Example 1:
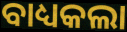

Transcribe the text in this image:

ବାଧ୍ୟକଲା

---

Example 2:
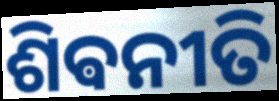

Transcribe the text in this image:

ଶିଵନୀତି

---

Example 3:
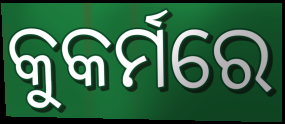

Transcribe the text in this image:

କୁକର୍ମରେ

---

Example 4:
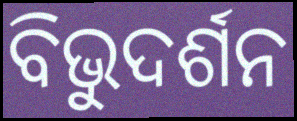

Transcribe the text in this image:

ବିଭୁଦର୍ଶନ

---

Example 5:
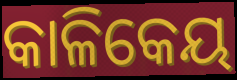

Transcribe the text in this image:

କାଳିକେୟ